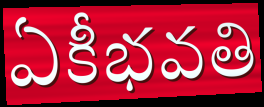
ఏకీభవతి